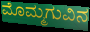
ಮೊಮ್ಮಗುವಿನ